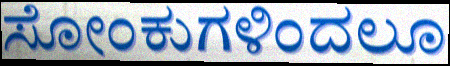
ಸೋಂಕುಗಳಿಂದಲೂ